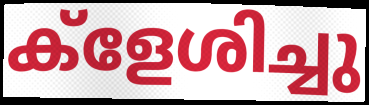
ക്ളേശിച്ചു